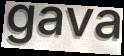
gava